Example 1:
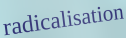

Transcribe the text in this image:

radicalisation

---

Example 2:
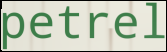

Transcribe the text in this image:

petrel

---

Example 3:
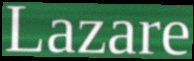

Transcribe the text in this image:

Lazare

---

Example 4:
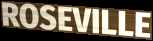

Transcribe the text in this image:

ROSEVILLE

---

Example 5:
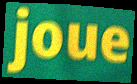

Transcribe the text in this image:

joue